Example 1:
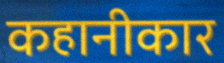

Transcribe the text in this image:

कहानीकार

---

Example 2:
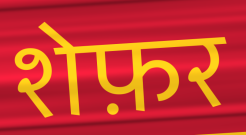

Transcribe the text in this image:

शेफ़र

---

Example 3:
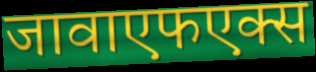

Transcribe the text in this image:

जावाएफएक्स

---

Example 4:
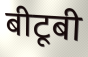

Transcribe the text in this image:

बीटूबी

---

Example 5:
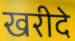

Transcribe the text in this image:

खरीदे